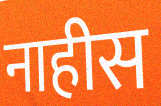
नाहीस